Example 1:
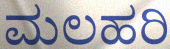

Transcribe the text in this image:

ಮಲಹರಿ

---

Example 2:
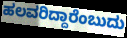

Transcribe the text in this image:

ಹಲವರಿದ್ದಾರೆಂಬುದು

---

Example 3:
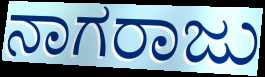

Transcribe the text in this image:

ನಾಗರಾಜು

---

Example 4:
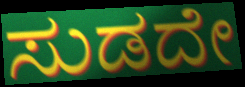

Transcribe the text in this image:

ಸುಡದೇ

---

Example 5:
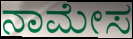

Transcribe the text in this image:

ನಾಮೇಸ